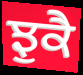
ਝੁਕੈ